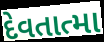
દેવતાત્મા